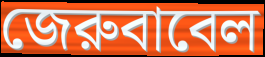
জেরুবাবেল